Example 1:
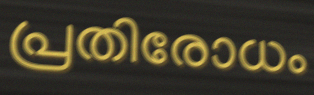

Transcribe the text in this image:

പ്രതിരോധം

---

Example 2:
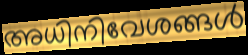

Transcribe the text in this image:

അധിനിവേശങ്ങൾ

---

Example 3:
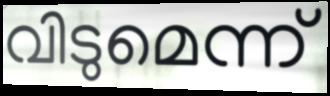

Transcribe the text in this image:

വിടുമെന്ന്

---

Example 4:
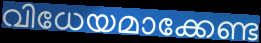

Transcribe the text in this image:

വിധേയമാക്കേണ്ട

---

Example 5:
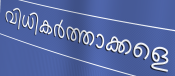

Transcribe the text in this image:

വിധികർത്താക്കളെ